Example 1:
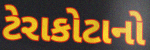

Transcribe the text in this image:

ટેરાકોટાનો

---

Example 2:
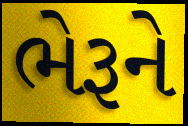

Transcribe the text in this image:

ભેરૂને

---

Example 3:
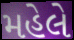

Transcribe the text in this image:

મહેલે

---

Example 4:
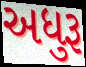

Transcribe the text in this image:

અધુરૂ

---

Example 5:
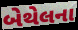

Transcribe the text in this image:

બેથેલના